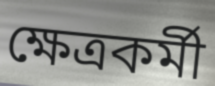
ক্ষেত্ৰকৰ্মী